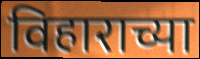
विहाराच्या